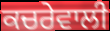
ਕਚਰੇਵਾਲੀ